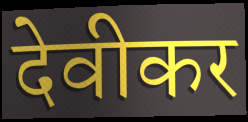
देवीकर